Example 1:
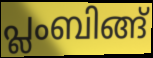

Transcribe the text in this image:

പ്ലംബിങ്ങ്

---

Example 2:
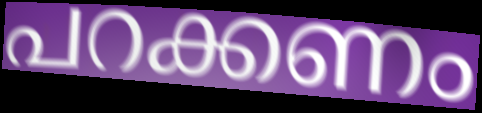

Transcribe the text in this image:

പറക്കണം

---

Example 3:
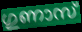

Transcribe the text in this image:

ഗുണാസ്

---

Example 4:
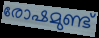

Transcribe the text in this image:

രോഷമുണ്ട്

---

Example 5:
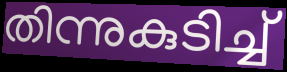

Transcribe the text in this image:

തിന്നുകുടിച്ച്